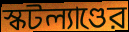
স্কটল্যাণ্ডের